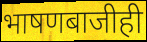
भाषणबाजीही